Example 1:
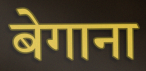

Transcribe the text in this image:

बेगाना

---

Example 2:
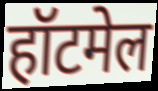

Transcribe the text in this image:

हॉटमेल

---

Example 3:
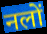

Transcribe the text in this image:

नलों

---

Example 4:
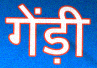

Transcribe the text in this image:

गेंड़ी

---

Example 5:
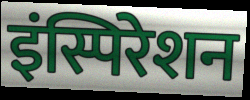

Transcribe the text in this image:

इंस्पिरेशन